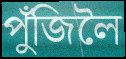
পুঁজিলৈ